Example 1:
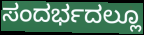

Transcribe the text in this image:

ಸಂದರ್ಭದಲ್ಲೂ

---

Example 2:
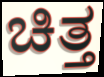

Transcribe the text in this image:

ಚಿತ್ತ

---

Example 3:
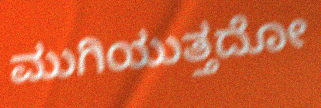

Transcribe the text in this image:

ಮುಗಿಯುತ್ತದೋ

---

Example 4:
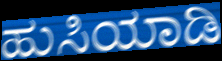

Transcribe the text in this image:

ಹುಸಿಯಾಡಿ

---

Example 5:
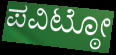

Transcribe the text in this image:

ಪವಿಟ್ಠೋ